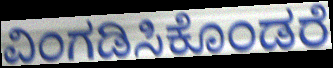
ವಿಂಗಡಿಸಿಕೊಂಡರೆ